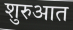
शुरुआत